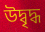
উদ্বৃদ্ধ